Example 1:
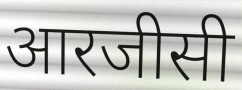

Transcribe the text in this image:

आरजीसी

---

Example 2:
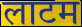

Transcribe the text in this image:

लाटम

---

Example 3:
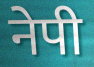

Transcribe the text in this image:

नेपी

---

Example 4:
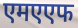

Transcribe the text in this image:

एमएएफ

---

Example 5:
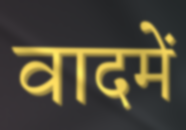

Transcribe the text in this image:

वादमें